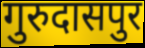
गुरुदासपुर